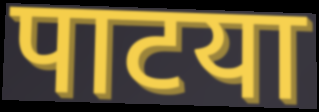
पाटया